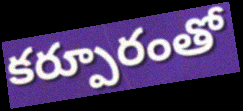
కర్పూరంతో